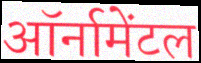
ऑर्नामेंटल